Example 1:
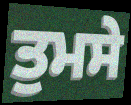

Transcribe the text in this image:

ਤੁਮਸੇ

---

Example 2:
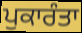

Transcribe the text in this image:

ਪੁਕਾਰੰਤਾ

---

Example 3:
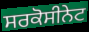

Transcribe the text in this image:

ਸਰਕੋਸੀਨੇਟ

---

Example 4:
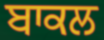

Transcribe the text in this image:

ਬਾਕਲ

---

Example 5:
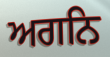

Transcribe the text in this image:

ਅਗਨਿ